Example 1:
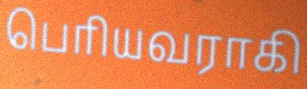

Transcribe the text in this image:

பெரியவராகி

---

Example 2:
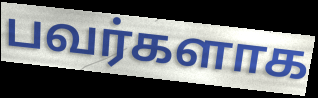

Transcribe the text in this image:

பவர்களாக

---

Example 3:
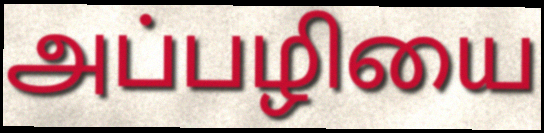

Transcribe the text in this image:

அப்பழியை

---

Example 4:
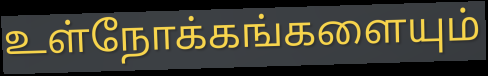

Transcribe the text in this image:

உள்நோக்கங்களையும்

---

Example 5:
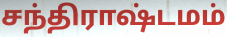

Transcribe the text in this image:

சந்திராஷ்டமம்